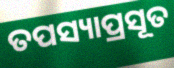
ତପସ୍ୟାପ୍ରସୂତ